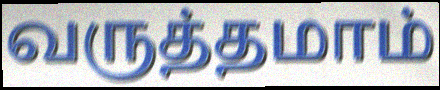
வருத்தமாம்